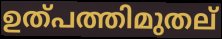
ഉത്പത്തിമുതല്